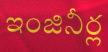
ఇంజినీర్ల